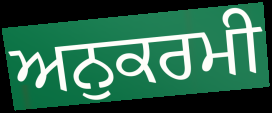
ਅਨੁਕਰਮੀ